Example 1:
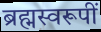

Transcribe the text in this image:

ब्रह्मस्वरूपीं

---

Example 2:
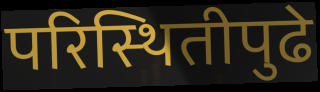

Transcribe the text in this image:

परिस्थितीपुढे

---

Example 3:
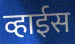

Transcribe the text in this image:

व्हाईस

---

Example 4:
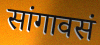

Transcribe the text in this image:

सांगावसं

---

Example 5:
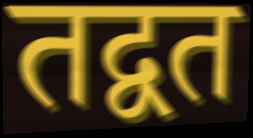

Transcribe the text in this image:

तद्वत